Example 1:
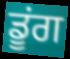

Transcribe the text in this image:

ਡੂਂਗ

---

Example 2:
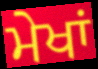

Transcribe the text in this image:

ਮੇਖਾਂ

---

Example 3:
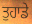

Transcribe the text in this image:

ਤੁਹਾਡੇ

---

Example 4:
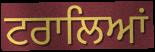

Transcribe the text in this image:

ਟਰਾਲਿਆਂ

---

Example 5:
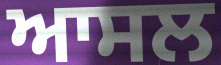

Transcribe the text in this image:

ਆਸਲ